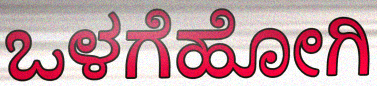
ಒಳಗೆಹೋಗಿ